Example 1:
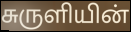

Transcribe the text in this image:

சுருளியின்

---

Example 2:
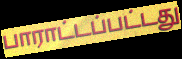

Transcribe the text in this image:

பாராட்டப்பட்டது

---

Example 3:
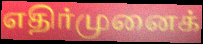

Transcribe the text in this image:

எதிர்முனைக்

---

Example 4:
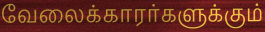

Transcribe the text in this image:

வேலைக்காரர்களுக்கும்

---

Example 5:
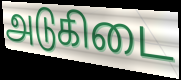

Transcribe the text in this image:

அடுகிடை